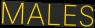
MALES